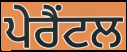
ਪੇਰੈਂਟਲ